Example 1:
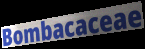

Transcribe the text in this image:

Bombacaceae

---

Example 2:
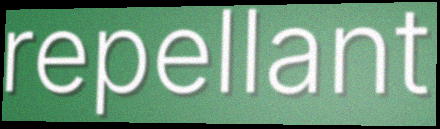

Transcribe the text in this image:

repellant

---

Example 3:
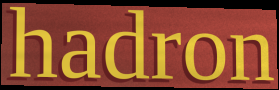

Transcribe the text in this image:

hadron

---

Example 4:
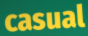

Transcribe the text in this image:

casual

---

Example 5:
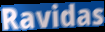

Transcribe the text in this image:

Ravidas